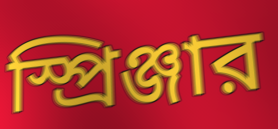
স্প্রিঞ্জার